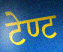
टेण्ट